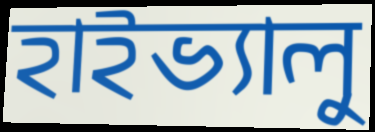
হাইভ্যালু